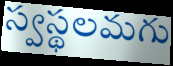
స్వస్థలమగు